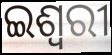
ଇଶ୍ୱରୀ